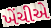
ખેંચીએ